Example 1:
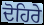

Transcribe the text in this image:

ਦੋਹਿਰੇ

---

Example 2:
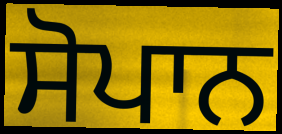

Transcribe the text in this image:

ਸੋਪਾਨ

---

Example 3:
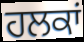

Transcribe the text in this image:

ਹਲਕਾਂ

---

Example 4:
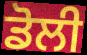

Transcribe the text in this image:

ਡੋਲੀ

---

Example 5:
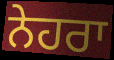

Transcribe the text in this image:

ਨੇਹਰਾ